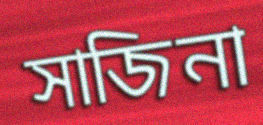
সাজিনা